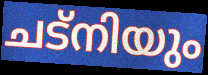
ചട്നിയും